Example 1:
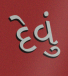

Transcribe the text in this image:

દેવું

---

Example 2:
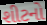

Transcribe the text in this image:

શીટનો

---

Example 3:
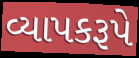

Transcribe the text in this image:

વ્યાપકરૂપે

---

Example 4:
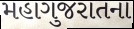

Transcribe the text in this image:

મહાગુજરાતના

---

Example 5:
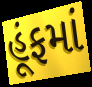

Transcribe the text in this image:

હૂંફમાં